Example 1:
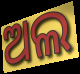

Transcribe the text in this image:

ଅଲ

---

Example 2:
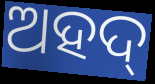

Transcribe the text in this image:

ଅହଦ୍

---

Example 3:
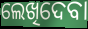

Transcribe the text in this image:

ଲେଖିଦେବା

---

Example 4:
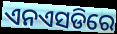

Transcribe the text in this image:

ଏନଏସଡିରେ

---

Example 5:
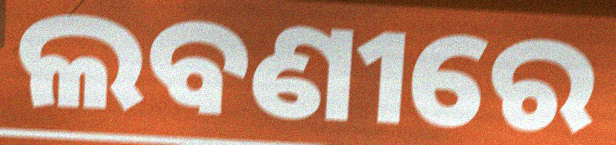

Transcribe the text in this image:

ଲବଣୀରେ